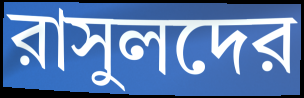
রাসুলদের